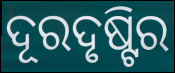
ଦୂରଦୃଷ୍ଟିର